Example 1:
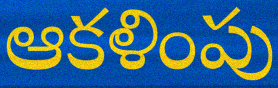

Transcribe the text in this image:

ఆకళింపు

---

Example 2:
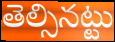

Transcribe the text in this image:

తెల్సినట్టు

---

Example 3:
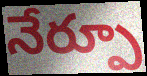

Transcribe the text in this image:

నేర్పూ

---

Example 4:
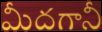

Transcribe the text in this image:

మీదగానీ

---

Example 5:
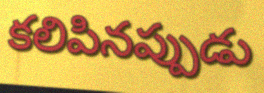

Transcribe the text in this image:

కలిపినప్పుడు